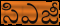
సిఎజీ